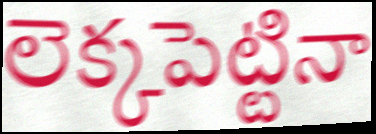
లెక్కపెట్టినా